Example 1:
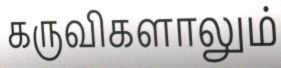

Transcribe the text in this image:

கருவிகளாலும்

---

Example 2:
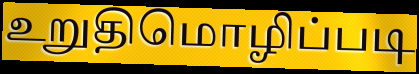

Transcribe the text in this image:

உறுதிமொழிப்படி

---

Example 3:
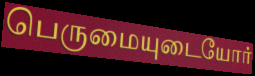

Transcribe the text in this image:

பெருமையுடையோர்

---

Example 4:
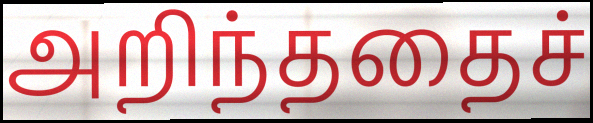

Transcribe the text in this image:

அறிந்ததைச்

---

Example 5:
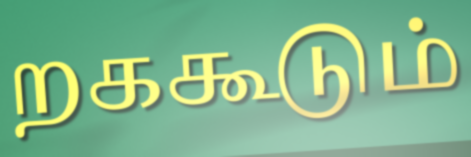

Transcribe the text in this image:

றககூடும்